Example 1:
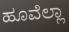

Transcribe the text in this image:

ಹೂವೆಲ್ಲಾ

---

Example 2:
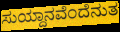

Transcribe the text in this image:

ಸುಯ್ದಾನವೆಂದೆನುತ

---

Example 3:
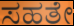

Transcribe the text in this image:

ಸಹತೇ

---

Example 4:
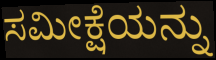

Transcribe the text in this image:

ಸಮೀಕ್ಷೆಯನ್ನು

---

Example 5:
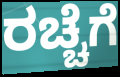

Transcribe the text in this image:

ರಚ್ಚೆಗೆ